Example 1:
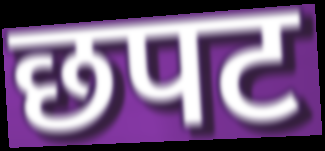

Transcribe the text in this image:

छपट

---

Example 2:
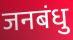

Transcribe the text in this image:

जनबंधु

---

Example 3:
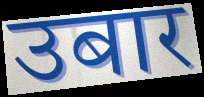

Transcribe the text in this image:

उबार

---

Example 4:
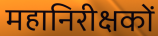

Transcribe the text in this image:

महानिरीक्षकों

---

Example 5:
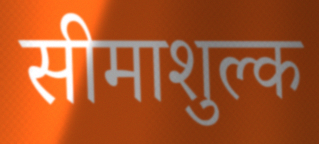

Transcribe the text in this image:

सीमाशुल्क